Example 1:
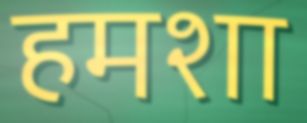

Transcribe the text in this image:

हमशा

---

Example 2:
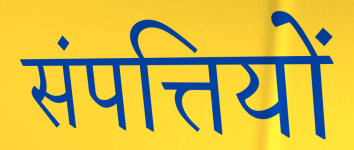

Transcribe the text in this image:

संपत्तियों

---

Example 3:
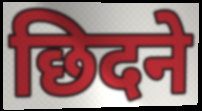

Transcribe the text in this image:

छिदने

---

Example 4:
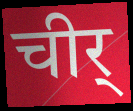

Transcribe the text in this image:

चीर्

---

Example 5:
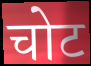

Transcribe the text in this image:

चोट